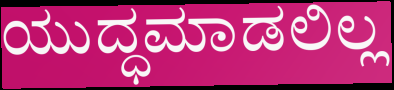
ಯುದ್ಧಮಾಡಲಿಲ್ಲ